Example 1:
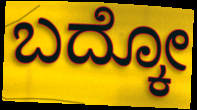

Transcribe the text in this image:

ಬದ್ಕೋ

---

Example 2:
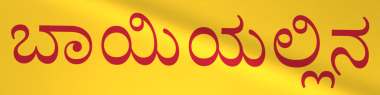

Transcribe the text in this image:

ಬಾಯಿಯಲ್ಲಿನ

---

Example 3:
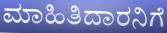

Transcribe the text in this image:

ಮಾಹಿತಿದಾರನಿಗೆ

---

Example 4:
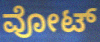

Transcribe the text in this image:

ವೋಟ್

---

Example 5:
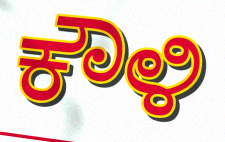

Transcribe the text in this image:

ಕೌಳಿ